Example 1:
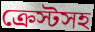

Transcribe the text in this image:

ক্রেস্টসহ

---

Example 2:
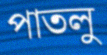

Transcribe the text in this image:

পাতলু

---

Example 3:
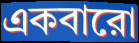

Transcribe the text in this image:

একবারো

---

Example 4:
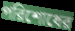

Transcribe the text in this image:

পরিশোধের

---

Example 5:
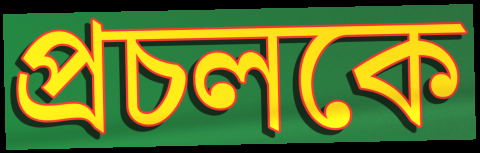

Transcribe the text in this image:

প্রচলকে